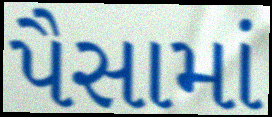
પૈસામાં